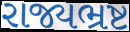
રાજ્યભ્રષ્ટ